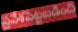
ప్రవేశపెట్టబడింది